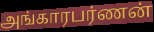
அங்காரபர்ணன்